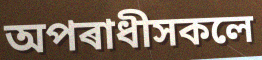
অপৰাধীসকলে